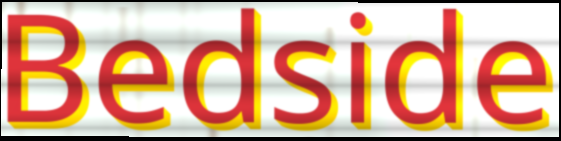
Bedside